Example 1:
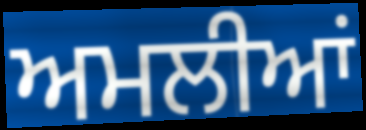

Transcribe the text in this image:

ਅਮਲੀਆਂ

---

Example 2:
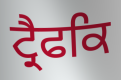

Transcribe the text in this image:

ਟ੍ਰੈਫਕਿ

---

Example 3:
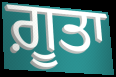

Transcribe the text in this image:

ਗ਼ੂਤਾ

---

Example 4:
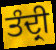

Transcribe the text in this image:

ਤੰਦ੍ਰੀ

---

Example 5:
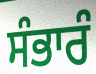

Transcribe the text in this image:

ਸੰਭਾਰੰ